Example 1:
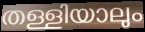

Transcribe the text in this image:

തള്ളിയാലും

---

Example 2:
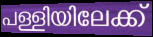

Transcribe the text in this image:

പള്ളിയിലേക്ക്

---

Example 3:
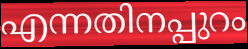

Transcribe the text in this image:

എന്നതിനപ്പുറം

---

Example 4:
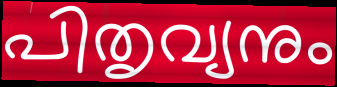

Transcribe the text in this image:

പിതൃവ്യനും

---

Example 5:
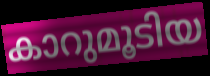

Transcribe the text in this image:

കാറുമൂടിയ